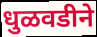
धुळवडीने